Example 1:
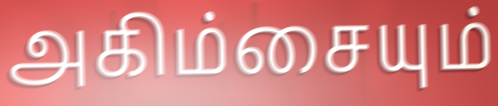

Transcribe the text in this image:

அகிம்சையும்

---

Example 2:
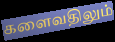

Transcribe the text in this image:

களைவதிலும்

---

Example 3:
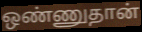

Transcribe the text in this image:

ஒண்ணுதான்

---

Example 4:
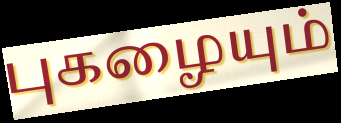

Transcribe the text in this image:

புகழையும்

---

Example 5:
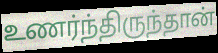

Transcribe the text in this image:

உணர்ந்திருந்தான்